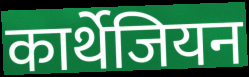
कार्थेजियन